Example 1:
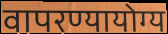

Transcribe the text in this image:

वापरण्यायोग्य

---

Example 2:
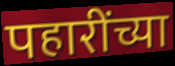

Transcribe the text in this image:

पहारींच्या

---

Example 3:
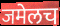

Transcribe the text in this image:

जमेलच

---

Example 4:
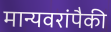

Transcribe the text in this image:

मान्यवरांपैकी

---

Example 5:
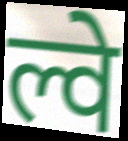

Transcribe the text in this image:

ल्वे